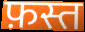
फ़स्त